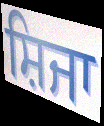
ਸ਼ਿਜਾ